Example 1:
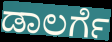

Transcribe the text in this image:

ಡಾಲರ್ಗೆ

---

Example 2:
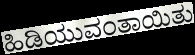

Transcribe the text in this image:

ಹಿಡಿಯುವಂತಾಯಿತು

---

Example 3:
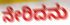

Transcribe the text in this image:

ನೇರಿದನು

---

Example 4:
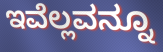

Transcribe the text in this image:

ಇವೆಲ್ಲವನ್ನೂ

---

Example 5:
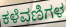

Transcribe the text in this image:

ಕಳೆವಣಿಗಳ